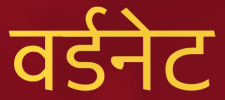
वर्डनेट